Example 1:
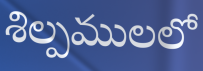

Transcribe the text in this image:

శిల్పములలో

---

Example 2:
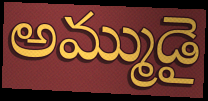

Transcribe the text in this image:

అమ్ముడై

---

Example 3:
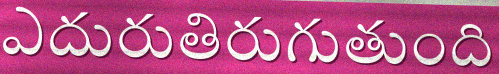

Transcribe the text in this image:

ఎదురుతిరుగుతుంది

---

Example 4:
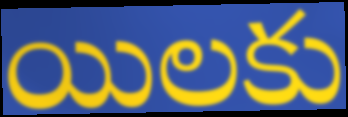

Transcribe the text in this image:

యిలకు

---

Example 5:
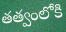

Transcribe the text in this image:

తత్వంలోకి